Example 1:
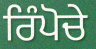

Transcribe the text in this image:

ਰਿੰਪੋਚੇ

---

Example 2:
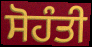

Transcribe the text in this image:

ਸੋਹੰਤੀ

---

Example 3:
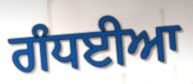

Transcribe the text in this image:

ਗੰਧਈਆ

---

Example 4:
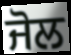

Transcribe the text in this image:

ਜੋਲ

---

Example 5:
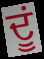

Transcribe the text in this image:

ਦੂਂ